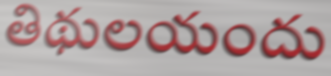
తిథులయందు